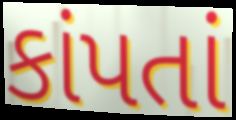
કાંપતાં